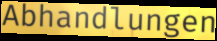
Abhandlungen